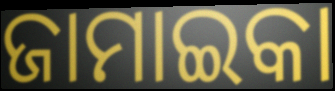
ଜାମାଇକା